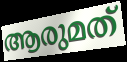
ആരുമത്